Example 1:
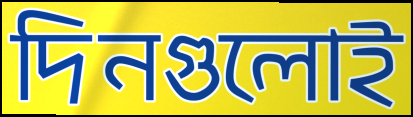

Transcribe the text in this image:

দিনগুলোই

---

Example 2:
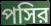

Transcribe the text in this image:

পসির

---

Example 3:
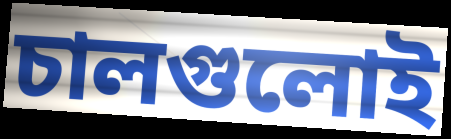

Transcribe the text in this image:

চালগুলোই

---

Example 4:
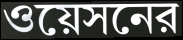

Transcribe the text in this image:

ওয়েসনের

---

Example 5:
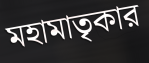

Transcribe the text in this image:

মহামাতৃকার